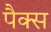
पैक्स